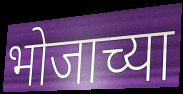
भोजाच्या